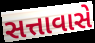
સત્તાવાસે